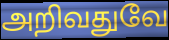
அறிவதுவே